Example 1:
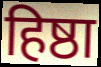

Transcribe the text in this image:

हिष्ठा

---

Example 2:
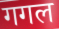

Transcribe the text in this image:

गगल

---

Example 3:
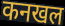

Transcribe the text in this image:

कनखल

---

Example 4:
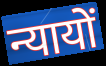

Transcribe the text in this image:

न्यायों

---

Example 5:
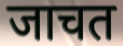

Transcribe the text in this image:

जाचत